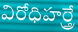
విరోధిహర్త్రే